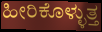
ಹೀರಿಕೊಳ್ಳುತ್ತ